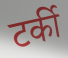
टर्की